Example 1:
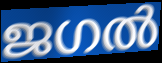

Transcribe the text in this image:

ജഗൽ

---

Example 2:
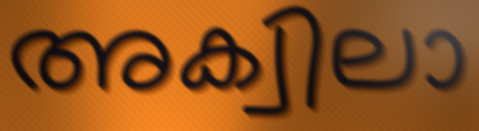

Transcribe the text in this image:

അക്വിലാ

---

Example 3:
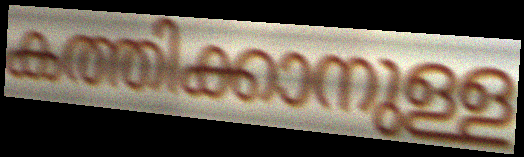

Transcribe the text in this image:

കത്തിക്കാനുള്ള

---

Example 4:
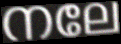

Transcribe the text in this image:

നലേ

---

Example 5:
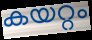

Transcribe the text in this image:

കയറ്റം